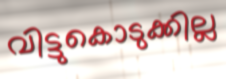
വിട്ടുകൊടുക്കില്ല